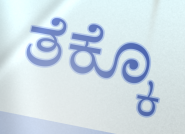
ತೆಕ್ಕೊ